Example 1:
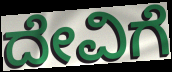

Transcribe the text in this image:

ದೇವಿಗೆ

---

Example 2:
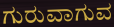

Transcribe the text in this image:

ಗುರುವಾಗುವ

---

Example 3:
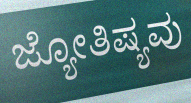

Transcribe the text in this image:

ಜ್ಯೋತಿಷ್ಯವು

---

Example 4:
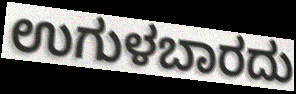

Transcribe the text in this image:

ಉಗುಳಬಾರದು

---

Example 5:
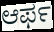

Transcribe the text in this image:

ಆರ್ಫ